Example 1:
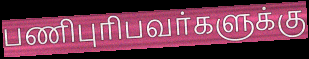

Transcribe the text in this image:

பணிபுரிபவர்களுக்கு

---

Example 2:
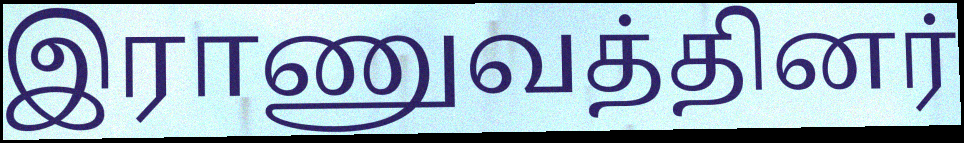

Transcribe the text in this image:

இராணுவத்தினர்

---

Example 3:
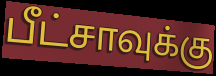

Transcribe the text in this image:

பீட்சாவுக்கு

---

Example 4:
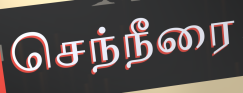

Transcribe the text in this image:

செந்நீரை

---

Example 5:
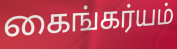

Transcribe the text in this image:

கைங்கர்யம்